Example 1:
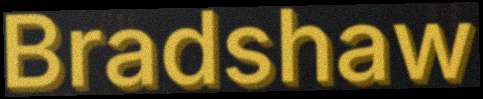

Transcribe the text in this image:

Bradshaw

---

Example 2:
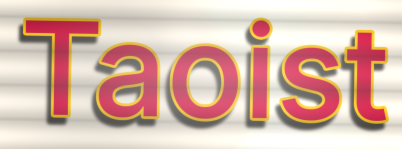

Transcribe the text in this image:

Taoist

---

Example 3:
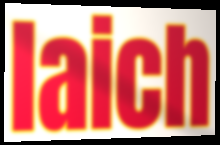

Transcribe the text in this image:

laich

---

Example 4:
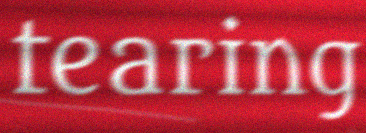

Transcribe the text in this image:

tearing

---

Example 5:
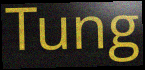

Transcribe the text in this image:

Tung